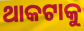
ଥାକଟାକୁ